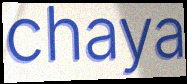
chaya